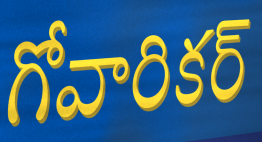
గోవారికర్